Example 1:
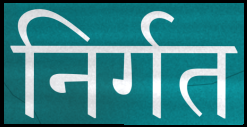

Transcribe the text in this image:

निर्गत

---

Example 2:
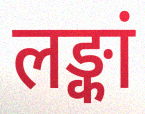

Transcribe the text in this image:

लङ्कां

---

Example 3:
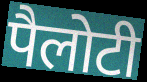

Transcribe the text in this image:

पैलोटी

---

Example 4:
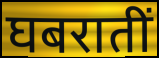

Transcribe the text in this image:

घबरातीं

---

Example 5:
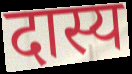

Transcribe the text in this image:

दास्य